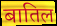
बातिल